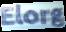
Elorg